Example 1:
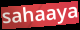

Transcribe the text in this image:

sahaaya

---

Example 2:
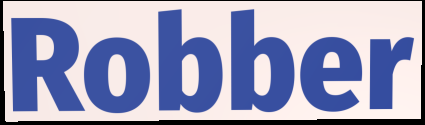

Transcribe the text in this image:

Robber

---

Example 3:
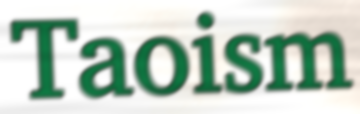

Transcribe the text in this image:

Taoism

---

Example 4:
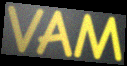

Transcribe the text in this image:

VAM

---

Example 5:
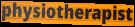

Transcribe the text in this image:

physiotherapist